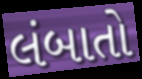
લંબાતો